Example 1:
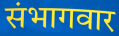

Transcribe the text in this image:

संभागवार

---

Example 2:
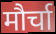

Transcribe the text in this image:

मौर्चा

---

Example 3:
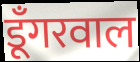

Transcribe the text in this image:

डूँगरवाल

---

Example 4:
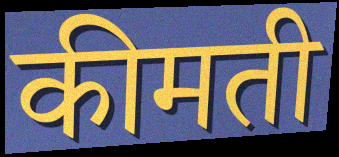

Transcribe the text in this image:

कीमती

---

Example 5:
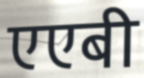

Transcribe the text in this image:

एएबी